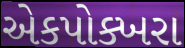
એકપોક્ખરા